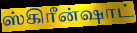
ஸ்கிரீன்ஷாட்